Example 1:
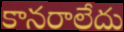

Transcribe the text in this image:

కానరాలేదు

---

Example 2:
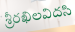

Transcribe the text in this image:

శ్రీరఖిలవిదసి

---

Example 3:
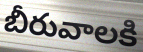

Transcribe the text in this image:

బీరువాలకి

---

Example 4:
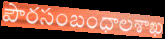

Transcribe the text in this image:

పౌరసంబంధాలశాఖ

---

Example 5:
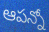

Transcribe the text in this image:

ఆపన్నో